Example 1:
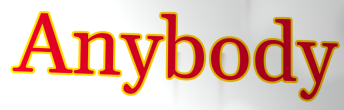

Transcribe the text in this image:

Anybody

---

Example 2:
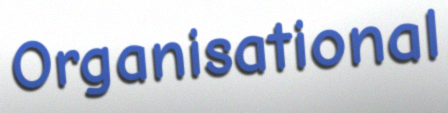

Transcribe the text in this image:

Organisational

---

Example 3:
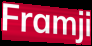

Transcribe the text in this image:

Framji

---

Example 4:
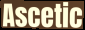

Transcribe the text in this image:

Ascetic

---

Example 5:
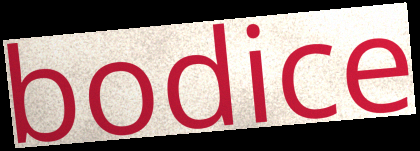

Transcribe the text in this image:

bodice